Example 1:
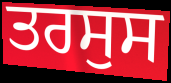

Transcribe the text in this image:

ਤਰਸੁਸ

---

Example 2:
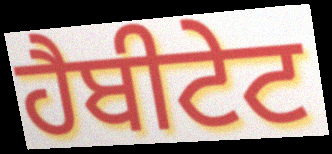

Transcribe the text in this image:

ਹੈਬੀਟੇਟ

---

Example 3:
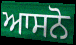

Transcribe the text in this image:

ਆਸਨੋ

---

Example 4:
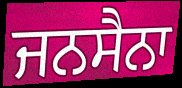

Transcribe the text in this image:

ਜਨਸੈਨਾ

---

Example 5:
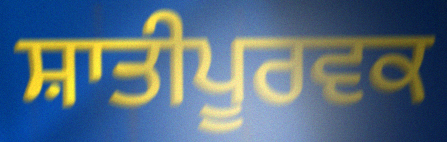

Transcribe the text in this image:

ਸ਼ਾਤੀਪੂਰਵਕ